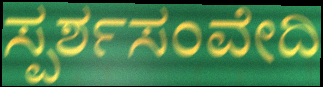
ಸ್ಪರ್ಶಸಂವೇದಿ